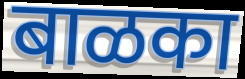
बाळका